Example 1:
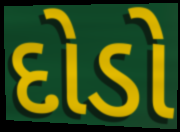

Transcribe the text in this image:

દોડો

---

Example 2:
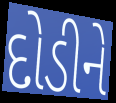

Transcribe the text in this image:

દોડીને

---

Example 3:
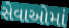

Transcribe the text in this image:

સેવાઓમાં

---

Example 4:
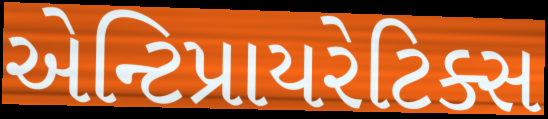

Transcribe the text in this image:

એન્ટિપ્રાયરેટિક્સ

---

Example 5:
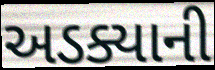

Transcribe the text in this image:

અડક્યાની